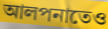
আলপনাতেও